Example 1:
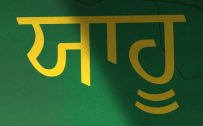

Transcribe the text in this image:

ਯਾਹੂ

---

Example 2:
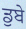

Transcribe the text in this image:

ਡੁਬੇ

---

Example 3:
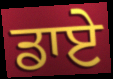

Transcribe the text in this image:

ਡਾਏ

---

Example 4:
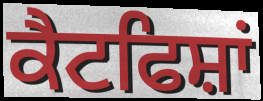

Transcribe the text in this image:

ਕੈਟਫਿਸ਼ਾਂ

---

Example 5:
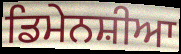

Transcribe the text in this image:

ਡਿਮੇਨਸ਼ੀਆ